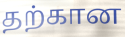
தற்கான